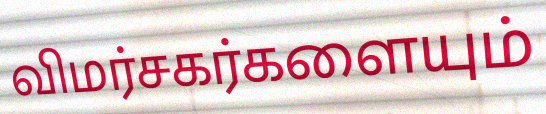
விமர்சகர்களையும்